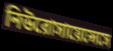
নিউরোসায়েন্সেসে